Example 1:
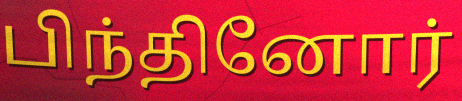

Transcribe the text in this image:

பிந்தினோர்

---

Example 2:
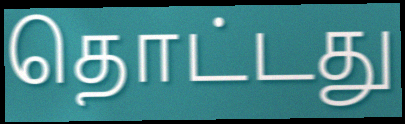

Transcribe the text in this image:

தொட்டது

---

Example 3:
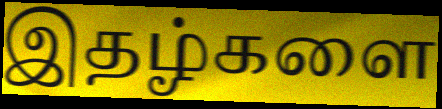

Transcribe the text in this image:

இதழ்களை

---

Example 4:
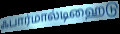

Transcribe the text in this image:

ஃபார்மால்டிஹைடு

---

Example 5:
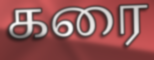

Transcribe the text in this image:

கரை